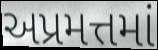
અપ્રમત્તમાં